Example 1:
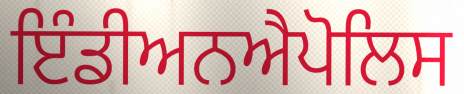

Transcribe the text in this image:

ਇੰਡੀਅਨਐਪੋਲਿਸ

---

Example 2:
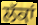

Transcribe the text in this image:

ਲੱਕਾਂ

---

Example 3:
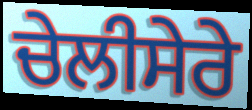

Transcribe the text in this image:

ਚੇਲੀਸੇਰੇ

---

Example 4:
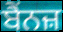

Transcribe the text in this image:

ਬੈਂਨਜ਼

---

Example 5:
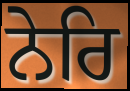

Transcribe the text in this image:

ਨੇਰਿ